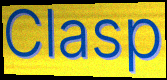
Clasp